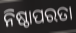
ନିଷ୍ଠାପରତା